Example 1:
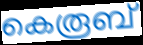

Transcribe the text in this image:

കെരൂബ്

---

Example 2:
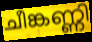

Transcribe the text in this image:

ചീങ്കണ്ണി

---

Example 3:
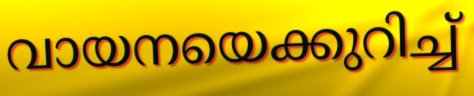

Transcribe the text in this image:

വായനയെക്കുറിച്ച്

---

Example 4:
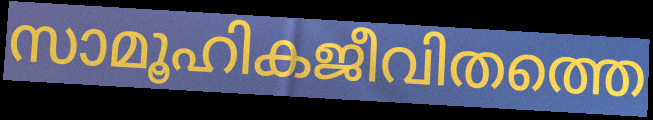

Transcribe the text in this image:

സാമൂഹികജീവിതത്തെ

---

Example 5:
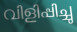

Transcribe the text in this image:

വിളിപ്പിച്ചു